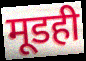
मूडही